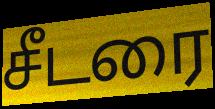
சீடரை